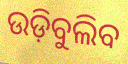
ଉଡ଼ିବୁଲିବ